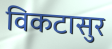
विकटासुर